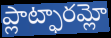
ప్లాట్ఫారమ్లో